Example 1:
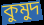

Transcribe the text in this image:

কুমুদ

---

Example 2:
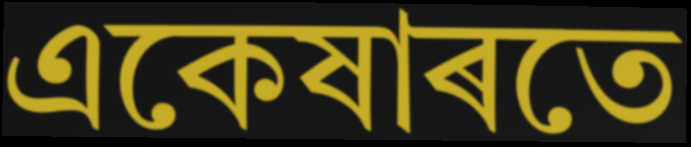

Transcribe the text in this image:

একেষাৰতে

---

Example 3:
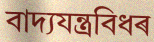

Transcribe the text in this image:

বাদ্যযন্ত্ৰবিধৰ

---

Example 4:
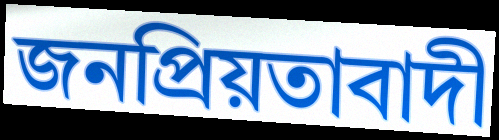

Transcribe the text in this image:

জনপ্ৰিয়তাবাদী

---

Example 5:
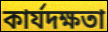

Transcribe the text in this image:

কাৰ্যদক্ষতা